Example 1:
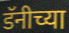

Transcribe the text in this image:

डॅनीच्या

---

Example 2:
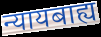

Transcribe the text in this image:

न्यायबाह्य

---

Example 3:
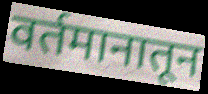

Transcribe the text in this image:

वर्तमानातून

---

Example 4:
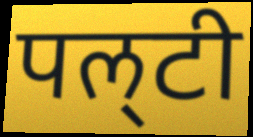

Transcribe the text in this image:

पल्टी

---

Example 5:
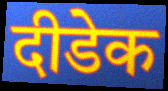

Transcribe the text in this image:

दीडेक